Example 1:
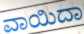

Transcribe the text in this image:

ವಾಯಿದಾ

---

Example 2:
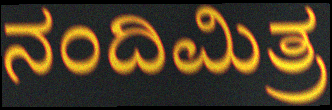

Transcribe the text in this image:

ನಂದಿಮಿತ್ರ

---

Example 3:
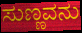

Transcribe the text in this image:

ಸುಣ್ಣವನು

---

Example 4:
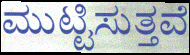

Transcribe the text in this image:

ಮುಟ್ಟಿಸುತ್ತವೆ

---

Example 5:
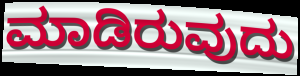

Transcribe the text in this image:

ಮಾಡಿರುವುದು